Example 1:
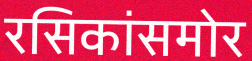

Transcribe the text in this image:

रसिकांसमोर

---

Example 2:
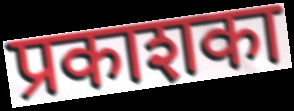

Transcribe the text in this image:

प्रकाशका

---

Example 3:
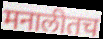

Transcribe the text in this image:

मनालीतच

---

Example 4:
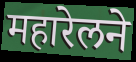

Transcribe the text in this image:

महारेलने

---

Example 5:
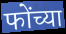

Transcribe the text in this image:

फोंच्या